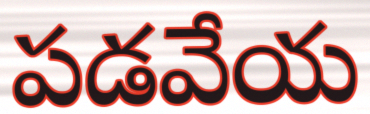
పడవేయ